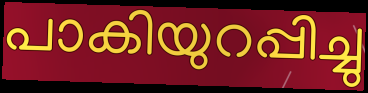
പാകിയുറപ്പിച്ചു